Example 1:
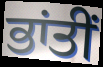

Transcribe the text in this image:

ਭਾਂਤੀਂ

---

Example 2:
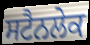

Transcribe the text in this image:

ਸਟੈਨਲੇਕ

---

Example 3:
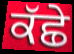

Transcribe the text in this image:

ਕੱਛੇ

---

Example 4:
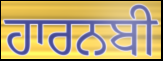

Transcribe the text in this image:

ਹਾਰਨਬੀ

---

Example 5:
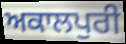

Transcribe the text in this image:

ਅਕਾਲਪੁਰੀ